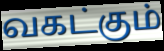
வகட்கும்